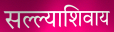
सल्ल्याशिवाय